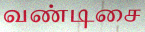
வண்டிசை